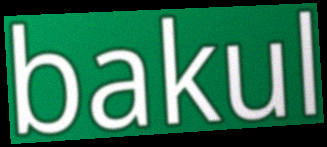
bakul